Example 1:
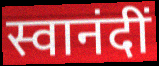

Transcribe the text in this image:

स्वानंदीं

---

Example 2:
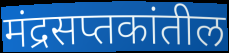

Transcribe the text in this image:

मंद्रसप्तकांतील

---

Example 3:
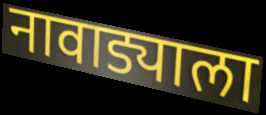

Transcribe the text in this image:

नावाड्याला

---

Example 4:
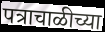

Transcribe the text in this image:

पत्राचाळीच्या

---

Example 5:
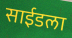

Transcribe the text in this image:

साईडला